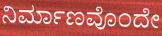
ನಿರ್ಮಾಣವೊಂದೇ